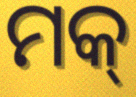
ମକ୍